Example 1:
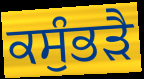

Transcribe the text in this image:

ਕਸੁੰਭੜੈ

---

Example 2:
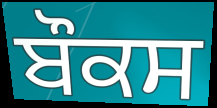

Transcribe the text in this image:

ਬੌਕਸ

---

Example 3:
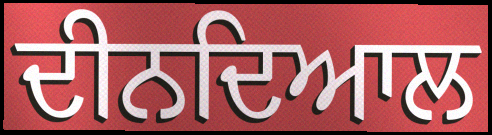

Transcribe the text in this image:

ਦੀਨਦਿਆਲ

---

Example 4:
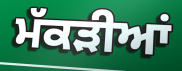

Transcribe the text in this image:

ਮੱਕੜੀਆਂ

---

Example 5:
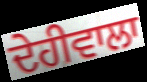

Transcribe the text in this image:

ਦੇਹੀਵਾਲਾ